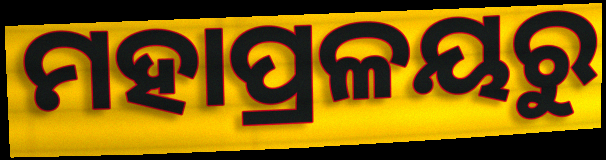
ମହାପ୍ରଳୟରୁ